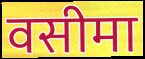
वसीमा